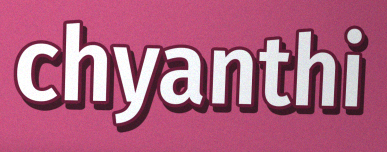
chyanthi